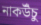
নাকউঁচু